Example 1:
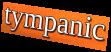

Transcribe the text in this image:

tympanic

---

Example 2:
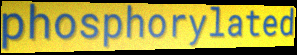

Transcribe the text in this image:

phosphorylated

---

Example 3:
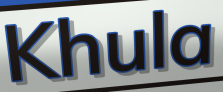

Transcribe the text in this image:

Khula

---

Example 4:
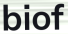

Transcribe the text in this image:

biof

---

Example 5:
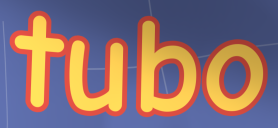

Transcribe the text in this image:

tubo